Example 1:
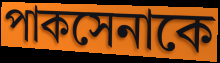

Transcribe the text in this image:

পাকসেনাকে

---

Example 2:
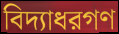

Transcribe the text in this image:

বিদ্যাধরগণ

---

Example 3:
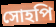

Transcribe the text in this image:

সোহপি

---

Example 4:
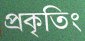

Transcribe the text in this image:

প্রকৃতিং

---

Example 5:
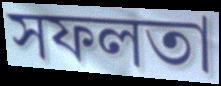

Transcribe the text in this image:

সফলতা